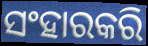
ସଂହାରକରି